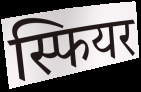
स्फियर